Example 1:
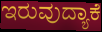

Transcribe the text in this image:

ಇರುವುದ್ಯಾಕೆ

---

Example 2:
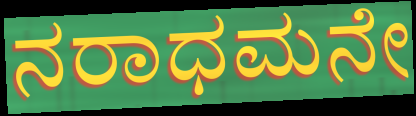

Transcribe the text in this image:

ನರಾಧಮನೇ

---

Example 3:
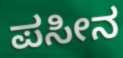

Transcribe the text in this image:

ಪಸೀನ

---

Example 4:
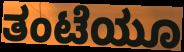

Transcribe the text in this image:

ತಂಟೆಯೂ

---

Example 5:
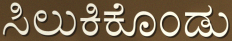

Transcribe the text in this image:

ಸಿಲುಕಿಕೊಂಡು